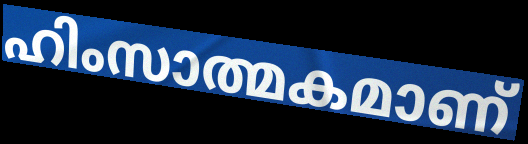
ഹിംസാത്മകമാണ്